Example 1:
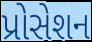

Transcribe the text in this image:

પ્રોસેશન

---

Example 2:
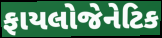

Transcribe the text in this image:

ફાયલોજેનેટિક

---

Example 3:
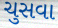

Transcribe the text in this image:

ચુસવા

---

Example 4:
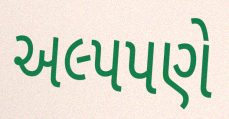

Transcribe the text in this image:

અલ્પપણે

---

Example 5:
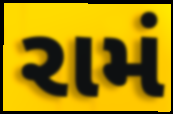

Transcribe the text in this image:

રામં